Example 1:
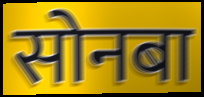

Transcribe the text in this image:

सोनबा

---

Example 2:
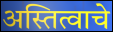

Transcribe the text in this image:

अस्तित्वाचे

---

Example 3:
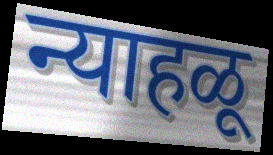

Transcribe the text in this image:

न्याहळू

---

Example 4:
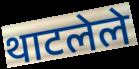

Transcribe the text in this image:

थाटलेले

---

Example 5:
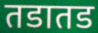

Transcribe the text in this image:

तडातड